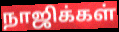
நாஜிக்கள்